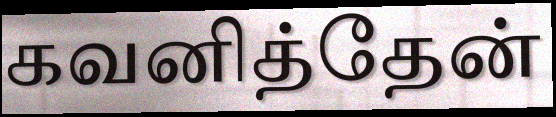
கவனித்தேன்